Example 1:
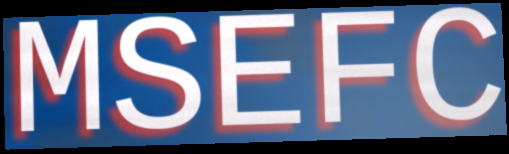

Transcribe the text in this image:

MSEFC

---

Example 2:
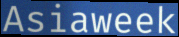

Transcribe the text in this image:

Asiaweek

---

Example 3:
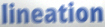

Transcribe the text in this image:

lineation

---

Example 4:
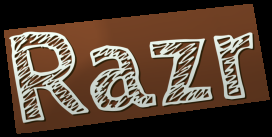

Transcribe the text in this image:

Razr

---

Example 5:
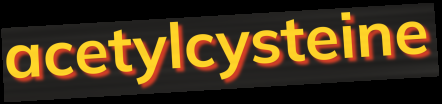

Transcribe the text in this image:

acetylcysteine